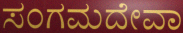
ಸಂಗಮದೇವಾ